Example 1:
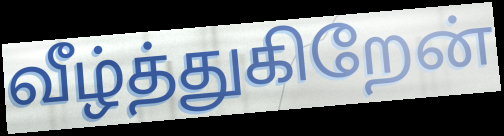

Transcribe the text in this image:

வீழ்த்துகிறேன்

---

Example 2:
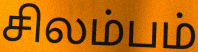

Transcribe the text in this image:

சிலம்பம்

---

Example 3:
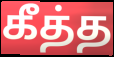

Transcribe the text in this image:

கீத்த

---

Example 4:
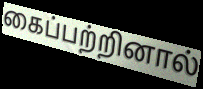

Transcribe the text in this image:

கைப்பற்றினால்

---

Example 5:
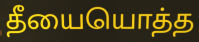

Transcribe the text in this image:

தீயையொத்த